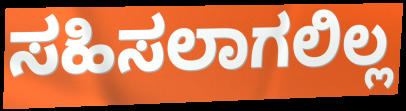
ಸಹಿಸಲಾಗಲಿಲ್ಲ